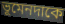
ভূমেনদাকে